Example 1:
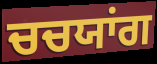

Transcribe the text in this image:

ਚਚਯਾਂਗ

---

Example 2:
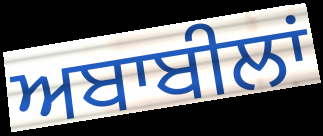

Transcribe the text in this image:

ਅਬਾਬੀਲਾਂ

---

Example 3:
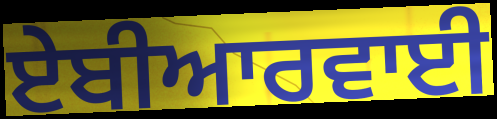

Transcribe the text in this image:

ਏਬੀਆਰਵਾਈ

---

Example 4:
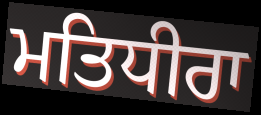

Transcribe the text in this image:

ਮਤਿਧੀਰਾ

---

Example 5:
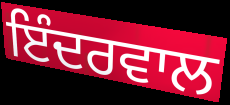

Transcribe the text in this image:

ਇੰਦਰਵਾਲ